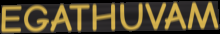
EGATHUVAM